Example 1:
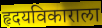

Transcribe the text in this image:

हृदयविकाराला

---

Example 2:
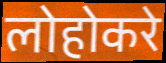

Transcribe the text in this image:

लोहोकरे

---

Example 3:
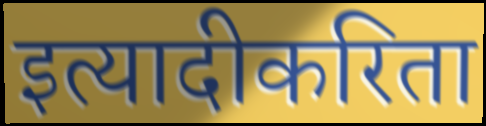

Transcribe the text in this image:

इत्यादीकरिता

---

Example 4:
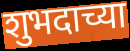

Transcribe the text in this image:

शुभदाच्या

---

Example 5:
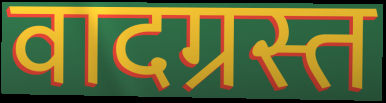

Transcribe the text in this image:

वादग्रस्त